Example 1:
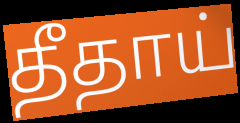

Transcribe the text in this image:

தீதாய்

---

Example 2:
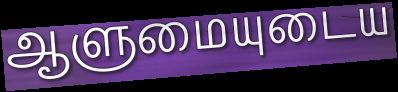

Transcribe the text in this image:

ஆளுமையுடைய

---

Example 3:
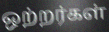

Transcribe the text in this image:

ஒற்றர்கள்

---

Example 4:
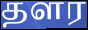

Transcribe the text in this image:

தளர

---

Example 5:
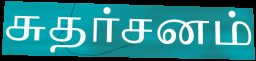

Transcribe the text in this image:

சுதர்சனம்